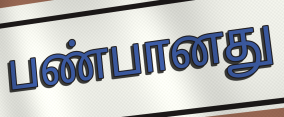
பண்பானது